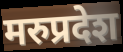
मरुप्रदेश